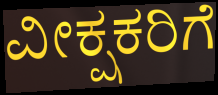
ವೀಕ್ಷಕರಿಗೆ